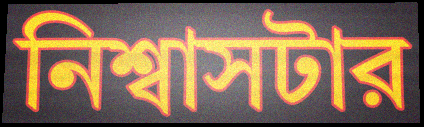
নিশ্বাসটার